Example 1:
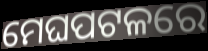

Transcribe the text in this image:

ମେଘପଟଳରେ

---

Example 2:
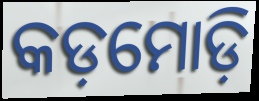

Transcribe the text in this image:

କଡ଼ମୋଡ଼ି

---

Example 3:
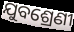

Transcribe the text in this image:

ଯୁବଶ୍ରେଣୀ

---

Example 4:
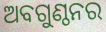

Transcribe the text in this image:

ଅବଗୁଣ୍ଠନର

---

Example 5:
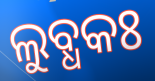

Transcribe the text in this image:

ଲୁବ୍ଧକଃ